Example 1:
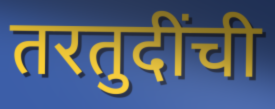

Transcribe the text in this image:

तरतुदींची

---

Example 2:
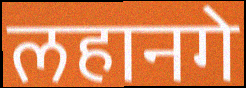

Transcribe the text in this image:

लहानगे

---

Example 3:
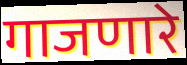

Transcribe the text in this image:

गाजणारे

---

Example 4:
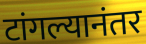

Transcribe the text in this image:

टांगल्यानंतर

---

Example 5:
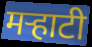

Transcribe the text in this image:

मर्‍हाटी